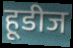
हूडीज